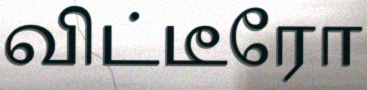
விட்டீரோ